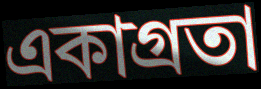
একাগ্রতা